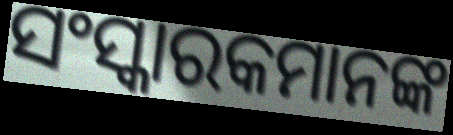
ସଂସ୍କାରକମାନଙ୍କ